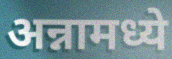
अन्नामध्ये